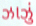
ઝાઝું